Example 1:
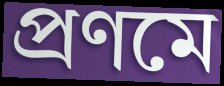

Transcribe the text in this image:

প্রণমে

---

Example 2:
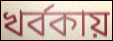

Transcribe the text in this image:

খর্বকায়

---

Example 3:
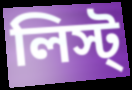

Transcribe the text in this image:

লিস্ট্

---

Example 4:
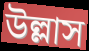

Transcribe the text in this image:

উল্লাস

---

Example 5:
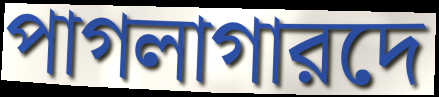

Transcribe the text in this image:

পাগলাগারদে